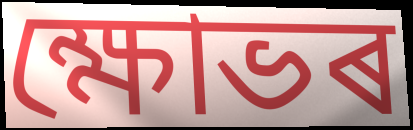
ক্ষোভৰ